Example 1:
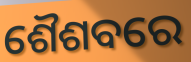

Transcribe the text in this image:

ଶୈଶବରେ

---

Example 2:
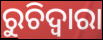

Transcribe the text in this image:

ରୁଚିଦ୍ୱାରା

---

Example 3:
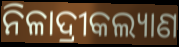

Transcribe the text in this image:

ନିଳାଦ୍ରୀକଲ୍ୟାଣ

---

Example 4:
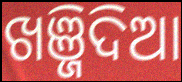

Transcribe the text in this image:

ଖଞ୍ଜିଦିଆ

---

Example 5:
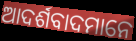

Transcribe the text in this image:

ଆଦର୍ଶବାଦମାନେ